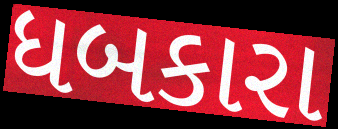
ધબકારા